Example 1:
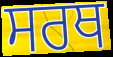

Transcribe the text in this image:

ਸਰਥ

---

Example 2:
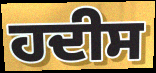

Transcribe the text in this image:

ਹਦੀਸ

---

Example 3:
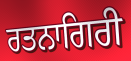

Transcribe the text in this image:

ਰਤਨਾਗਿਰੀ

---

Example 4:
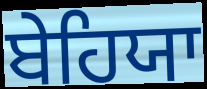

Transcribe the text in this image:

ਬੇਹਿਯਾ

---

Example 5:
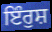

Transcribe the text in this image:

ਇੰਰੁਸ਼